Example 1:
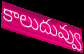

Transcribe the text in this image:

కాలుదువ్వు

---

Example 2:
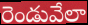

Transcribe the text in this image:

రెండువేలా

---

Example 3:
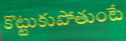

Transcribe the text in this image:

కొట్టుకుపోతుంటే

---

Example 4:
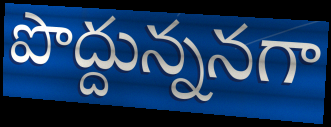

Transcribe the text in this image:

పొద్దున్ననగా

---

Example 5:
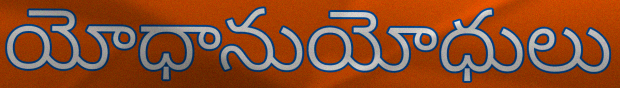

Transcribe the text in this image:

యోధానుయోధులు